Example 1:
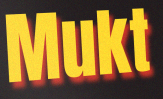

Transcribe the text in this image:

Mukt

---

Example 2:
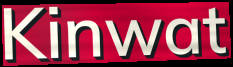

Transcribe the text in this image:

Kinwat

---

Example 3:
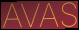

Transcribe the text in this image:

AVAS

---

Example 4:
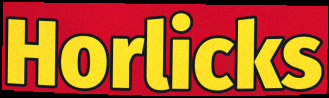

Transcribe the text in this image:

Horlicks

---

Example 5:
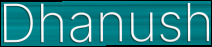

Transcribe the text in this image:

Dhanush